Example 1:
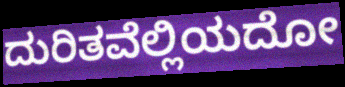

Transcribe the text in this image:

ದುರಿತವೆಲ್ಲಿಯದೋ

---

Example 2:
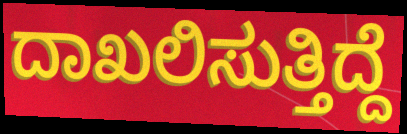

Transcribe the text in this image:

ದಾಖಲಿಸುತ್ತಿದ್ದೆ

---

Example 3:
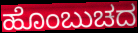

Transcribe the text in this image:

ಹೊಂಬುಚದ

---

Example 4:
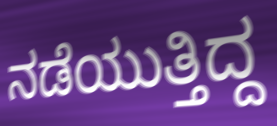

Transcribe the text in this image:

ನಡೆಯುತ್ತಿದ್ದ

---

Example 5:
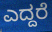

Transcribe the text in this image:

ಎದ್ದರೆ